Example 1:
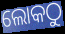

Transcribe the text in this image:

ଲୋକଠୁ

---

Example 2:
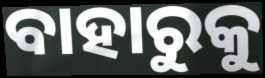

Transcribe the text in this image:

ବାହାରୁକୁ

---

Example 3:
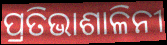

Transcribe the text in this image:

ପ୍ରତିଭାଶାଳିନୀ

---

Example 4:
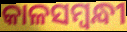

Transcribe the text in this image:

କାଳସମ୍ଵନ୍ଧୀ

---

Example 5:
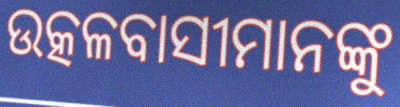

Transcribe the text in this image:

ଉତ୍କଳବାସୀମାନଙ୍କୁ